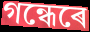
গন্ধেৰে